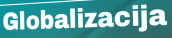
Globalizacija